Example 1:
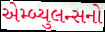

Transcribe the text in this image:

એમ્બ્યુલન્સનો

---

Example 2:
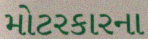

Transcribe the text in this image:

મોટરકારના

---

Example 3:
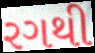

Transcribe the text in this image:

રગથી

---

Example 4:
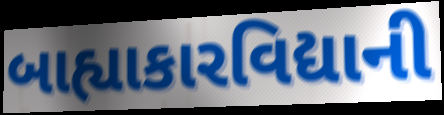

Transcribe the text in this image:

બાહ્યાકારવિદ્યાની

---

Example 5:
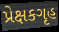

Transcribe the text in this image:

પ્રેક્ષકગૃહ